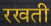
रखती